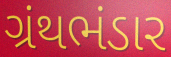
ગ્રંથભંડાર